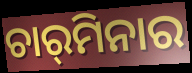
ଚାର୍‌ମିନାର